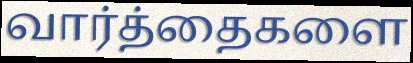
வார்த்தைகளை